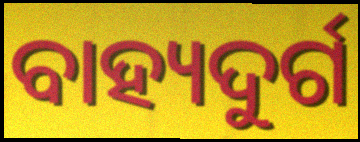
ବାହ୍ୟଦୁର୍ଗ